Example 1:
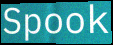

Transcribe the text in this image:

Spook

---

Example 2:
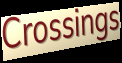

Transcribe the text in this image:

Crossings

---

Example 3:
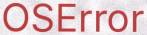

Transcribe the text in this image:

OSError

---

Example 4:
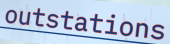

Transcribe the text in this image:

outstations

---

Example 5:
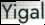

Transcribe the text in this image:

Yigal